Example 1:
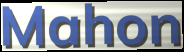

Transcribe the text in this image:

Mahon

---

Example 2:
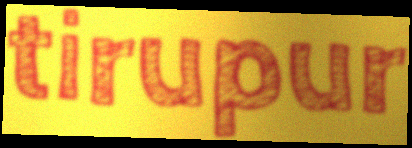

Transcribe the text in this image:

tirupur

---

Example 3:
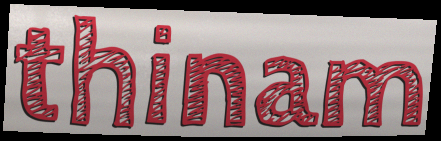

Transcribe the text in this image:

thinam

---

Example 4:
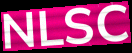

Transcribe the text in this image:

NLSC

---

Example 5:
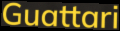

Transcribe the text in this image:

Guattari